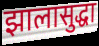
झालासुद्धा